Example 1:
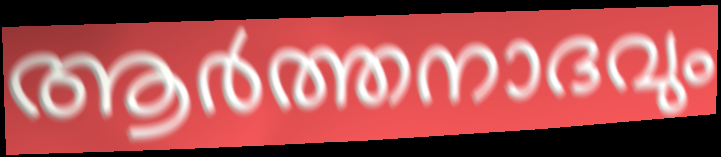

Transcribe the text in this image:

ആർത്തനാദവും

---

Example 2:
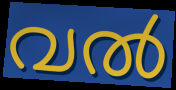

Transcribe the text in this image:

വൽ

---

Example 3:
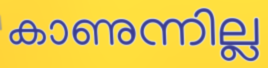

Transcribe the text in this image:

കാണുന്നില്ല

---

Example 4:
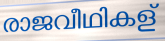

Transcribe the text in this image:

രാജവീഥികള്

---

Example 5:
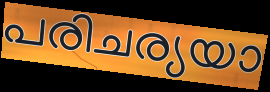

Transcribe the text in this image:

പരിചര്യയാ